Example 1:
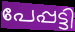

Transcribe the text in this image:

പേപ്പട്ടി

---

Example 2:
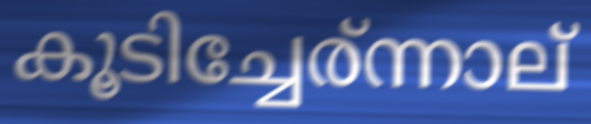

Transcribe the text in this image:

കൂടിച്ചേര്ന്നാല്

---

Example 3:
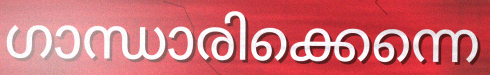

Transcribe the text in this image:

ഗാന്ധാരിക്കെന്നെ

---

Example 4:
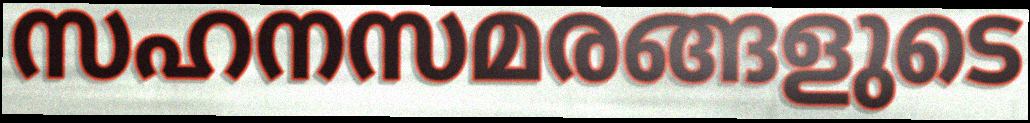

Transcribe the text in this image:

സഹനസമരങ്ങളുടെ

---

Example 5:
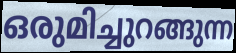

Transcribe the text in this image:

ഒരുമിച്ചുറങ്ങുന്ന